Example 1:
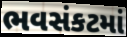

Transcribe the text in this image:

ભવસંકટમાં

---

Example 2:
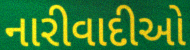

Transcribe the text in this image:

નારીવાદીઓ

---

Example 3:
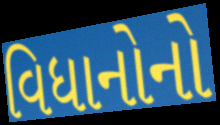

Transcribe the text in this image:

વિધાનોનો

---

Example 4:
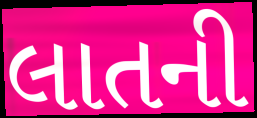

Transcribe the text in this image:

લાતની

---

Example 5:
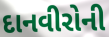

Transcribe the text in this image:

દાનવીરોની